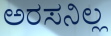
ಅರಸನಿಲ್ಲ